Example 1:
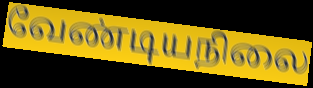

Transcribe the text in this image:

வேண்டியநிலை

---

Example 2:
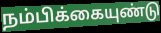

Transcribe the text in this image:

நம்பிக்கையுண்டு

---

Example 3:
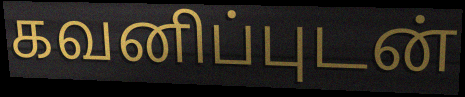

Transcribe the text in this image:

கவனிப்புடன்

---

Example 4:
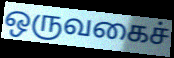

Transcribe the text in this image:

ஒருவகைச்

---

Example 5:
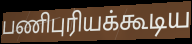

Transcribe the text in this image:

பணிபுரியக்கூடிய